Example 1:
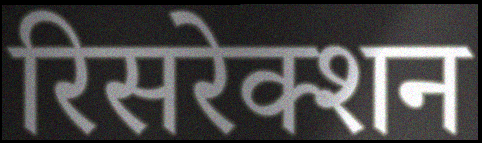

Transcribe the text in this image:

रिसरेक्शन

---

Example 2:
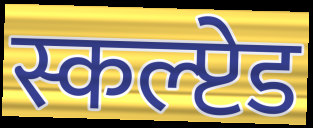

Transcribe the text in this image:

स्कल्प्टेड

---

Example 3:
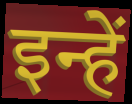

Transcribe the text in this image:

इन्‍हें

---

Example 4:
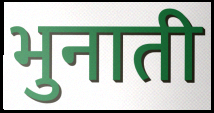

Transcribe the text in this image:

भुनाती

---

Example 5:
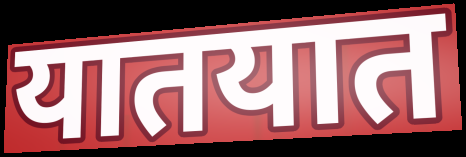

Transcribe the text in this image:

यातयात